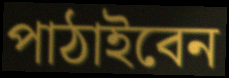
পাঠাইবেন